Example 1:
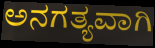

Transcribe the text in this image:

ಅನಗತ್ಯವಾಗಿ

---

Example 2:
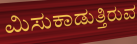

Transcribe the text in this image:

ಮಿಸುಕಾಡುತ್ತಿರುವ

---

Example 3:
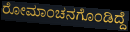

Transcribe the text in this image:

ರೋಮಾಂಚನಗೊಂಡಿದ್ದೆ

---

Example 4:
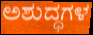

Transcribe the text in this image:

ಅಶುದ್ಧಗಳ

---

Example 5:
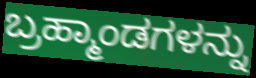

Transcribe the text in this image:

ಬ್ರಹ್ಮಾಂಡಗಳನ್ನು